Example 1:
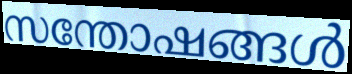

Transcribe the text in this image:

സന്തോഷങ്ങൾ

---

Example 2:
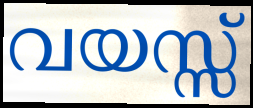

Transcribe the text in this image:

വയസ്സ്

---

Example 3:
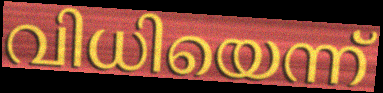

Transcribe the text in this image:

വിധിയെന്ന്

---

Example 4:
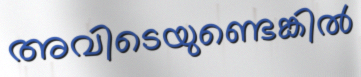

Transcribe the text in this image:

അവിടെയുണ്ടെങ്കിൽ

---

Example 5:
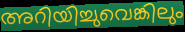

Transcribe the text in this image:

അറിയിച്ചുവെങ്കിലും